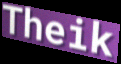
Theik